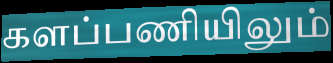
களப்பணியிலும்